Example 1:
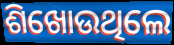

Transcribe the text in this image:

ଶିଖୋଉଥିଲେ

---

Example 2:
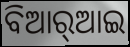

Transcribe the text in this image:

ବିଆର୍‌ଆଇ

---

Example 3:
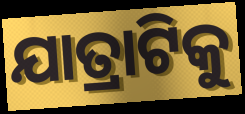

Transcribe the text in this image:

ଯାତ୍ରାଟିକୁ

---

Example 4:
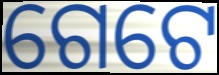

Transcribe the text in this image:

ଗେଟେ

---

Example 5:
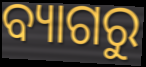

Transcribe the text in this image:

ବ୍ୟାଗରୁ